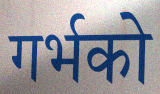
गर्भको